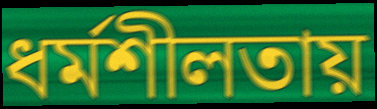
ধর্মশীলতায়